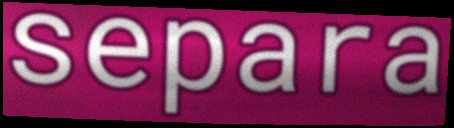
separa